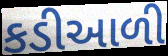
કડીઆળી